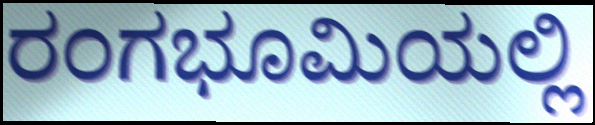
ರಂಗಭೂಮಿಯಲ್ಲಿ